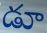
డూ